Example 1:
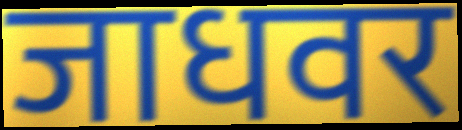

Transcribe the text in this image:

जाधवर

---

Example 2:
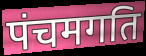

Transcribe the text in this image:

पंचमगति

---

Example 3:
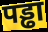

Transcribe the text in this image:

पड्ढा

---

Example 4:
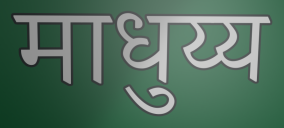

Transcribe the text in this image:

माधुय्य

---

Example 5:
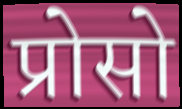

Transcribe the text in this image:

प्रोसो